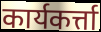
कार्यकर्त्ता